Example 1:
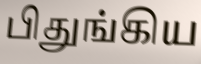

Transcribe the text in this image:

பிதுங்கிய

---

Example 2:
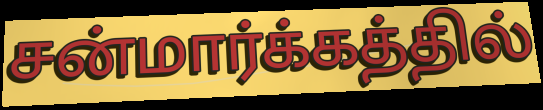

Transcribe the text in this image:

சன்மார்க்கத்தில்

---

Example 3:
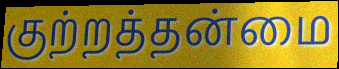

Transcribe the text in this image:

குற்றத்தன்மை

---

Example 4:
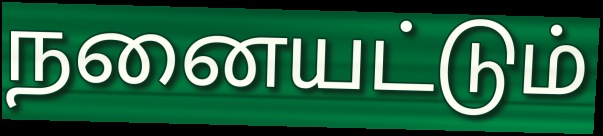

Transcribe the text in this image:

நனையட்டும்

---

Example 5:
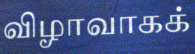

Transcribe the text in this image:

விழாவாகக்